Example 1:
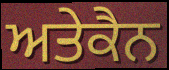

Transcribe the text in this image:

ਅਤੇਕੈਨ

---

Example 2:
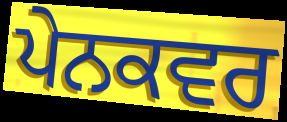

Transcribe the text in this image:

ਪੇਨਕਵਰ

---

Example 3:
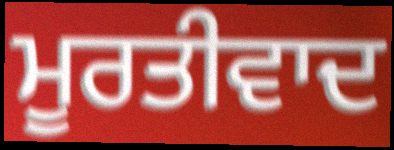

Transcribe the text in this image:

ਮੂਰਤੀਵਾਦ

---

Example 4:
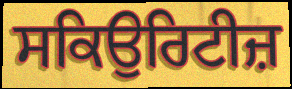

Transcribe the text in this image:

ਸਕਿਉਰਿਟੀਜ਼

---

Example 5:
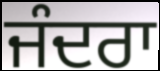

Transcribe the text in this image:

ਜੰਦਰਾ